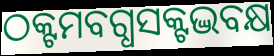
ଠକ୍ଟମବଗ୍ଧସକ୍ଟଦ୍ଭବକ୍ଷ